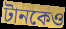
টানকেও